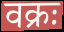
वक्रः